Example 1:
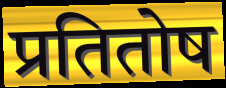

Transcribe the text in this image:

प्रतितोष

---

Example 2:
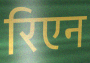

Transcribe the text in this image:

रिएन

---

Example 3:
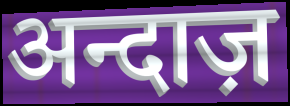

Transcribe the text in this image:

अन्दाज़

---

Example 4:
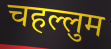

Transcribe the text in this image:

चहल्लुम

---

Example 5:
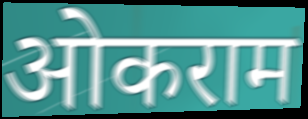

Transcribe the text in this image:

ओकराम